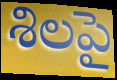
శిలపై